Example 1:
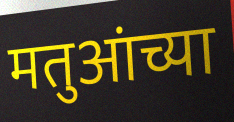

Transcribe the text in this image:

मतुआंच्या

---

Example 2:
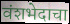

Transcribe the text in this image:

वंशभेदाचा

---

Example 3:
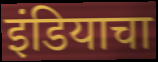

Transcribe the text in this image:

इंडियाचा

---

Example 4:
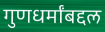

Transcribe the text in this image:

गुणधर्मांबद्दल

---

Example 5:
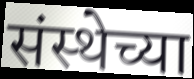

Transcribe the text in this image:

संस्थेच्या